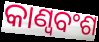
କାଣ୍ୱବଂଶ